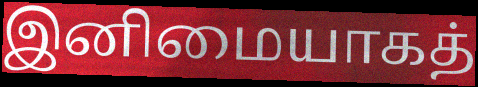
இனிமையாகத்